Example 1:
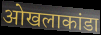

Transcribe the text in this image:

ओखलाकांडा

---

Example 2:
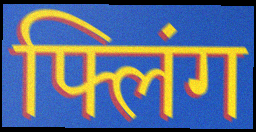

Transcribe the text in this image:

फ्लिंग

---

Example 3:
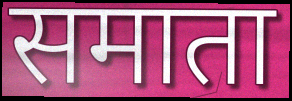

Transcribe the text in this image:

समाता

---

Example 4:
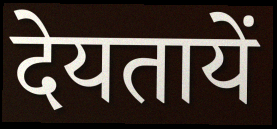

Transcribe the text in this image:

देयतायें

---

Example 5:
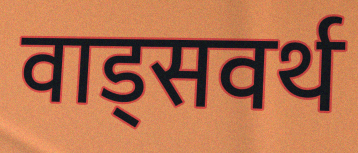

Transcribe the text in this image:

वाड्सवर्थ